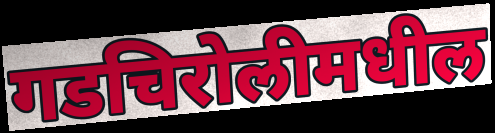
गडचिरोलीमधील